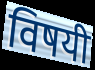
विषयी